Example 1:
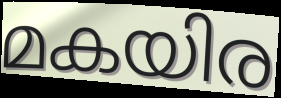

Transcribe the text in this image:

മകയിര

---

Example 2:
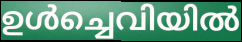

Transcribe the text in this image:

ഉൾച്ചെവിയിൽ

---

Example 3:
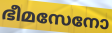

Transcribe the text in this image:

ഭീമസേനോ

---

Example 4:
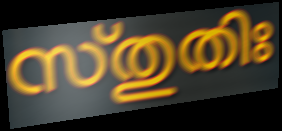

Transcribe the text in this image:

സ്തുതിഃ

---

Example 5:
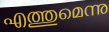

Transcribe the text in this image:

എത്തുമെന്നു